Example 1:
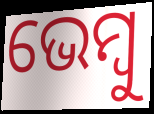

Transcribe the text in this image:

ଭେମ୍ବୁ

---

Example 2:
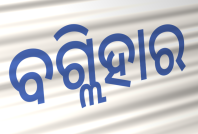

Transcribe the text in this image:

ବଗ୍ଲିହାର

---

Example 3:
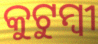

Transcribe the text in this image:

କୁଟୁମ୍ବୀ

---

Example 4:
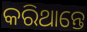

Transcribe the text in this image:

କରିଥାନ୍ତେ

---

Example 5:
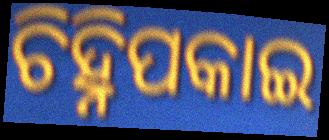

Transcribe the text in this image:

ଚିହ୍ନିପକାଇ